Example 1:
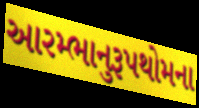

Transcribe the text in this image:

આરમ્ભાનુરૂપથોમના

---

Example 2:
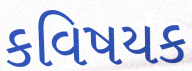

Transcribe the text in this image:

કવિષયક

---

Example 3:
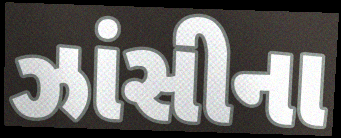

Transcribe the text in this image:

ઝાંસીના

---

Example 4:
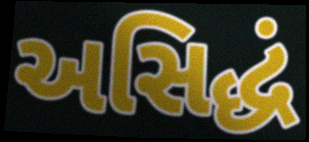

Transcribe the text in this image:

અસિદ્ધં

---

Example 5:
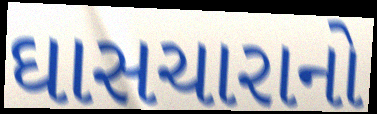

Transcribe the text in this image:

ઘાસચારાનો